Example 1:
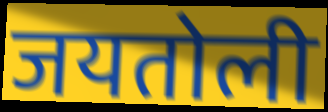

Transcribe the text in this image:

जयतोली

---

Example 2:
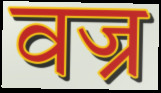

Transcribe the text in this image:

वज्र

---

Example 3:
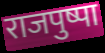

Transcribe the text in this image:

राजपुष्पा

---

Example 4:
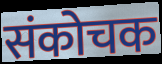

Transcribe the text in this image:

संकोचक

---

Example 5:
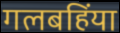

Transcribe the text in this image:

गलबहिंया